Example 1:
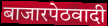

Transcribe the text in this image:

बाजारपेठवादी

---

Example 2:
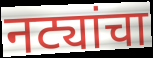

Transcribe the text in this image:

नट्यांचा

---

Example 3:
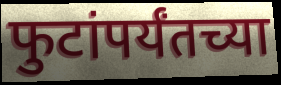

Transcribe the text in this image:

फुटांपर्यंतच्या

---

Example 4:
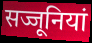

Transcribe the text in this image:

सज्जूनियां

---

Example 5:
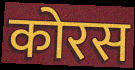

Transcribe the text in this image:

कोरस